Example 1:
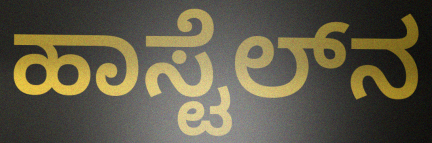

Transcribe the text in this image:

ಹಾಸ್ಟೆಲ್‌ನ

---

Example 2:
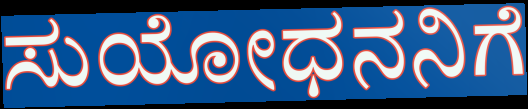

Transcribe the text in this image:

ಸುಯೋಧನನಿಗೆ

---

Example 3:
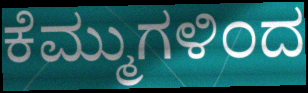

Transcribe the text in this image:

ಕೆಮ್ಮುಗಳಿಂದ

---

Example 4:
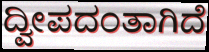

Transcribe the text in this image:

ದ್ವೀಪದಂತಾಗಿದೆ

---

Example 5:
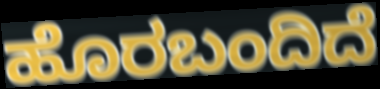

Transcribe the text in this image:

ಹೊರಬಂದಿದೆ